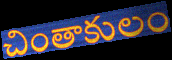
చింతాకులం